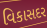
વિકાસદર